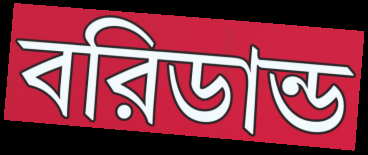
বরিডান্ড